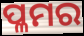
ପ୍ଳମର